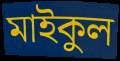
মাইকুল